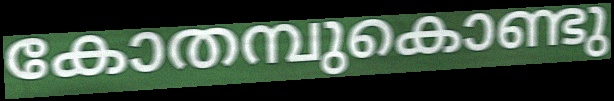
കോതമ്പുകൊണ്ടു